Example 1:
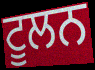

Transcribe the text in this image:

ਟੂਲਨ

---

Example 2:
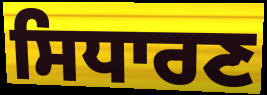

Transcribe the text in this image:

ਸਿਧਾਰਣ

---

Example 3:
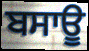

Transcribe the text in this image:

ਬਸਾਊ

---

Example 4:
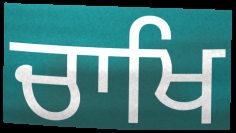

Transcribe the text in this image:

ਚਾਖਿ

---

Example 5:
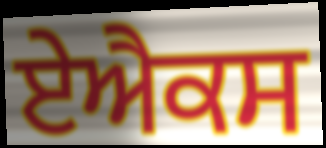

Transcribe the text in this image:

ਏਐਕਸ